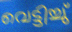
വെട്ടിച്ചു്